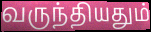
வருந்தியதும்